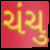
ચંચુ